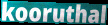
kooruthal